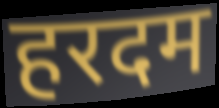
हरदम